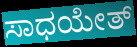
ಸಾಧಯೇತ್